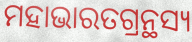
ମହାଭାରତଗ୍ରନ୍ଥସ୍ୟ